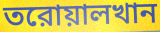
তরোয়ালখান